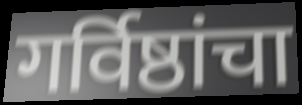
गर्विष्ठांचा